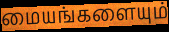
மையங்களையும்